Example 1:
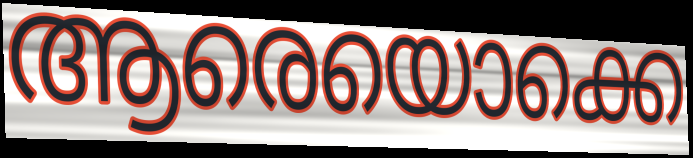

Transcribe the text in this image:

ആരെയൊക്കെ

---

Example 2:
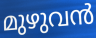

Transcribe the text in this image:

മുഴുവൻ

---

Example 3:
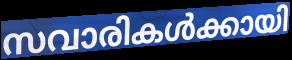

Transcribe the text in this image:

സവാരികൾക്കായി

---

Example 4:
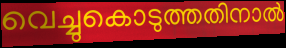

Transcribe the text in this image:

വെച്ചുകൊടുത്തതിനാൽ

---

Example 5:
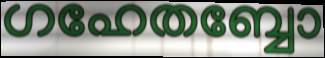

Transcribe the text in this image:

ഗഹേതബ്ബോ